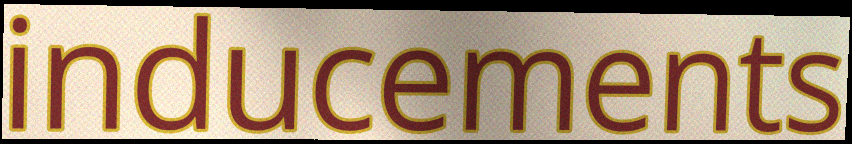
inducements